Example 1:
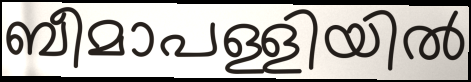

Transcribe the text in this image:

ബീമാപള്ളിയിൽ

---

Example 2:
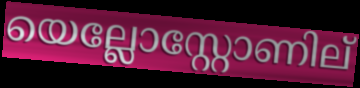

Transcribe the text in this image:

യെല്ലോസ്റ്റോണില്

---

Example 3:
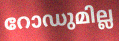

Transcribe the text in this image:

റോഡുമില്ല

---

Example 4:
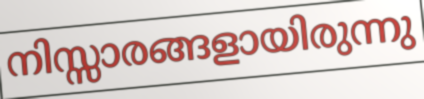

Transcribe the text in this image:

നിസ്സാരങ്ങളായിരുന്നു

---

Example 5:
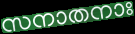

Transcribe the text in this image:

സനാതനാഃ